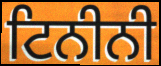
ਟਿਨੀਨੀ